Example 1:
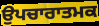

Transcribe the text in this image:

ਉਪਚਾਰਾਤਮਕ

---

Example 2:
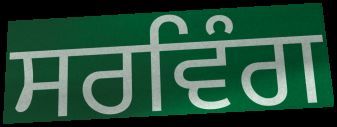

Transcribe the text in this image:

ਸਰਵਿੰਗ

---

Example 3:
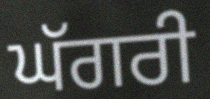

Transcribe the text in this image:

ਘੱਗਰੀ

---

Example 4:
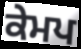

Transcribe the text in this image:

ਕੇਮਪ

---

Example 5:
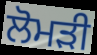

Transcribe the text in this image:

ਲੋਮੜੀ